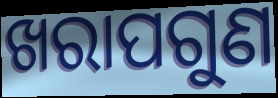
ଖରାପଗୁଣ